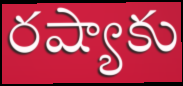
రష్యాకు